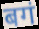
बगं